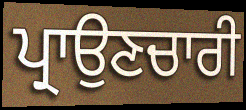
ਪ੍ਰਾਉਣਚਾਰੀ